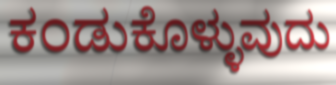
ಕಂಡುಕೊಳ್ಳುವುದು